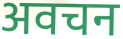
अवचन